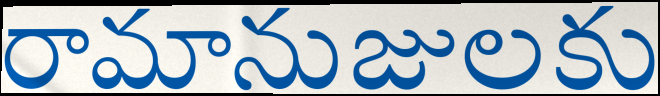
రామానుజులకు